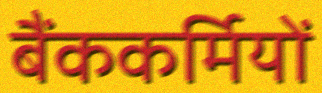
बैंककर्मियों